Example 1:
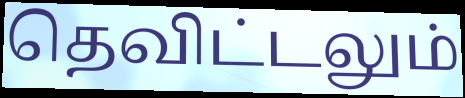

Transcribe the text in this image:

தெவிட்டலும்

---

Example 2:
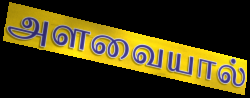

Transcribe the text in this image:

அளவையால்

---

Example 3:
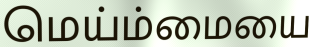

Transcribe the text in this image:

மெய்ம்மையை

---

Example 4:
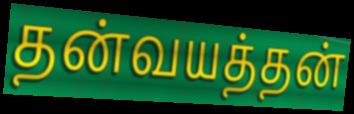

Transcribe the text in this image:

தன்வயத்தன்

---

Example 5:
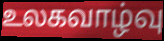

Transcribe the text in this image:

உலகவாழ்வு